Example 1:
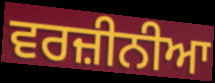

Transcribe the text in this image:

ਵਰਜ਼ੀਨੀਆ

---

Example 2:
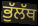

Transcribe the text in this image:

ਭੁੱਲੱਥ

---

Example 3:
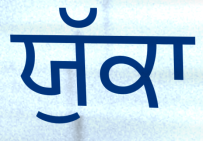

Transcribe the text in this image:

ਯੁੱਕਾ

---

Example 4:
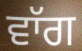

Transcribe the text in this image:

ਵਾੱਗ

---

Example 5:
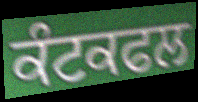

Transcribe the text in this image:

ਕੰਟਕਫਲ